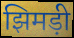
झिमड़ी